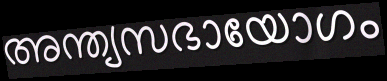
അന്ത്യസഭായോഗം